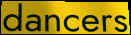
dancers